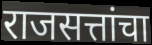
राजसत्तांचा